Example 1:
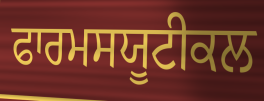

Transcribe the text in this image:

ਫਾਰਮਸਯੂਟੀਕਲ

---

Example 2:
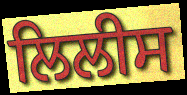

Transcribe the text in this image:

ਲਿਲੀਸ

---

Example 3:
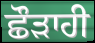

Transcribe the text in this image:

ਛੌੜਾਹੀ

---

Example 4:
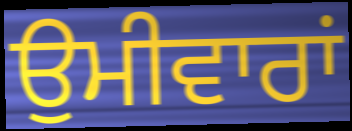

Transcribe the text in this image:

ਉਮੀਵਾਰਾਂ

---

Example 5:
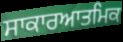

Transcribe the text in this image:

ਸਾਕਾਰਆਤਮਿਕ